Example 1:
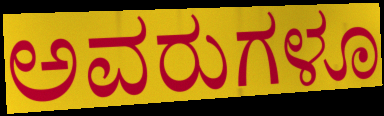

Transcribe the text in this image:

ಅವರುಗಳೂ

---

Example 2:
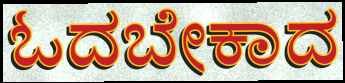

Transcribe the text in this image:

ಓದಬೇಕಾದ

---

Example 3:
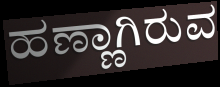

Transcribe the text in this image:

ಹಣ್ಣಾಗಿರುವ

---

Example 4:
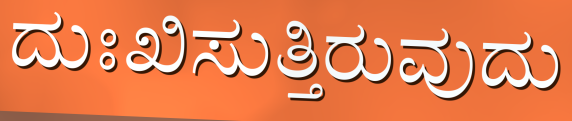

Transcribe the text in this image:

ದುಃಖಿಸುತ್ತಿರುವುದು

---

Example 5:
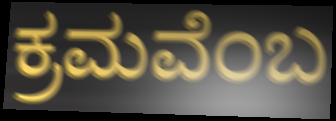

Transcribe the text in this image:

ಕ್ರಮವೆಂಬ